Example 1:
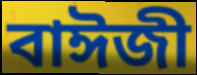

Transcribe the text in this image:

বাঈজী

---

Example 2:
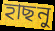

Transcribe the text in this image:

হাছনু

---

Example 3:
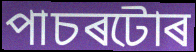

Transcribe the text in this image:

পাচৰটোৰ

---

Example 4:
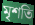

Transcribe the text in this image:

মৃশতি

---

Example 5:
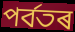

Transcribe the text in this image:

পৰ্বতৰ